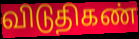
விடுதிகண்